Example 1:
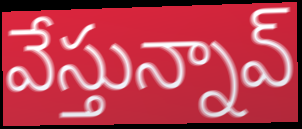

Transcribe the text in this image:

వేస్తున్నావ్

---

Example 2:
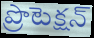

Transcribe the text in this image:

ప్రొటెక్షన్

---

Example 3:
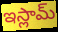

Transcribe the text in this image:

ఇస్లామ్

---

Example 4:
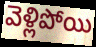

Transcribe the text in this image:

వెళ్లిపోయి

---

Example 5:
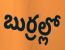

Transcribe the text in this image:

బుర్రల్లో